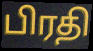
பிரதி